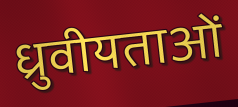
ध्रुवीयताओं